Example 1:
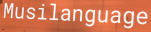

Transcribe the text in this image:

Musilanguage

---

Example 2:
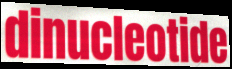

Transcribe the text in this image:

dinucleotide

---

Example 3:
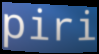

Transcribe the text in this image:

piri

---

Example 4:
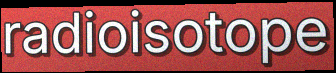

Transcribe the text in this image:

radioisotope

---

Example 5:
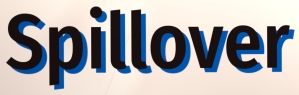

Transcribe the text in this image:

Spillover